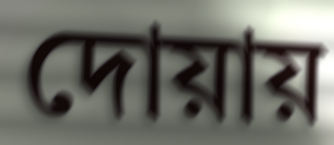
দোয়ায়